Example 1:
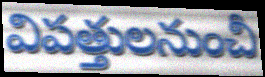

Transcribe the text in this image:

విపత్తులనుంచీ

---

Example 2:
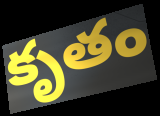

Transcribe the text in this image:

కృతం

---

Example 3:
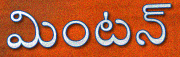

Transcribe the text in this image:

మింటన్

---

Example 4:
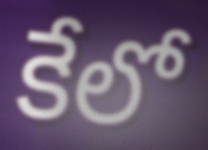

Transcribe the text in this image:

కేలో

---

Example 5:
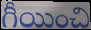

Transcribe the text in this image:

గీయించి